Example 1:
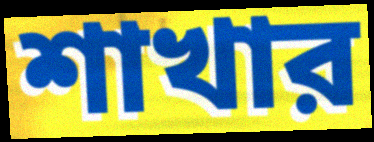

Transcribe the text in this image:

শাখার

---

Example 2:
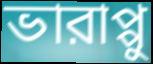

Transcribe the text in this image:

ভারাপ্পু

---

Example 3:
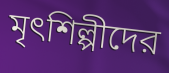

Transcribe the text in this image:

মৃৎশিল্পীদের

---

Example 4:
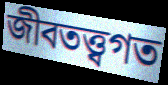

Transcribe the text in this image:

জীবতত্ত্বগত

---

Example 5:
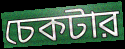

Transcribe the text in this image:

চেকটার